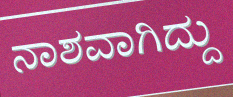
ನಾಶವಾಗಿದ್ದು